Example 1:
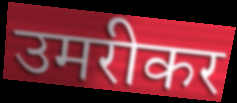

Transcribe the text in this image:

उमरीकर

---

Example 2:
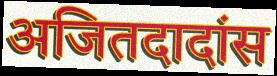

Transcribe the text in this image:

अजितदादांस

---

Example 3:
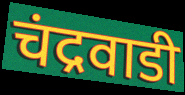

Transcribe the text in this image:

चंद्रवाडी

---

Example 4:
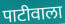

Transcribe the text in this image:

पाटीवाला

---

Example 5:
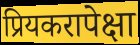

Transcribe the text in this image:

प्रियकरापेक्षा